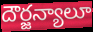
దౌర్జన్యాలూ